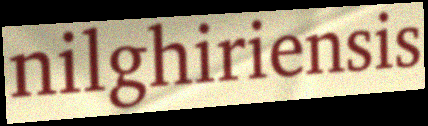
nilghiriensis